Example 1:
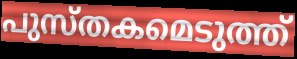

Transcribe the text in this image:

പുസ്തകമെടുത്ത്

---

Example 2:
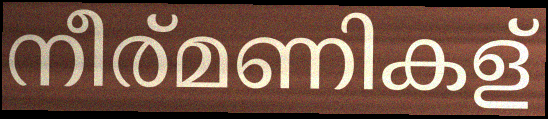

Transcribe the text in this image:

നീര്മണികള്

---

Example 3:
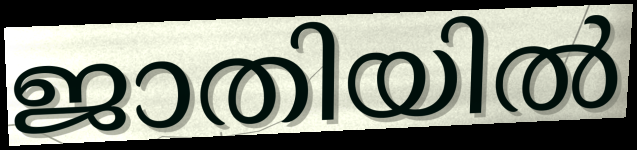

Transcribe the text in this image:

ജാതിയിൽ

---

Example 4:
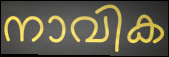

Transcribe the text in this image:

നാവിക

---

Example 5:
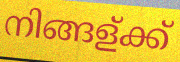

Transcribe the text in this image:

നിങ്ങള്ക്ക്